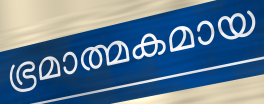
ഭ്രമാത്മകമായ